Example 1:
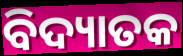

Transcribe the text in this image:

ବିଦ୍ୟାତକ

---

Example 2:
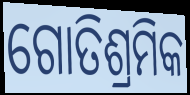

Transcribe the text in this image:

ଗୋତିଶ୍ରମିକ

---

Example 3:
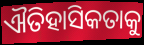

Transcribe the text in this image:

ଐତିହାସିକତାକୁ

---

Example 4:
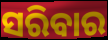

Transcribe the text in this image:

ସରିବାର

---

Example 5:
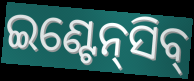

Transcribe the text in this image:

ଇଣ୍ଟେନ୍‍ସିବ୍